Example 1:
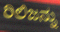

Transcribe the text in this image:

ರಿಲಿಜನ್ನು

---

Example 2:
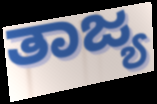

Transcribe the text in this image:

ತಾಜ್ಯ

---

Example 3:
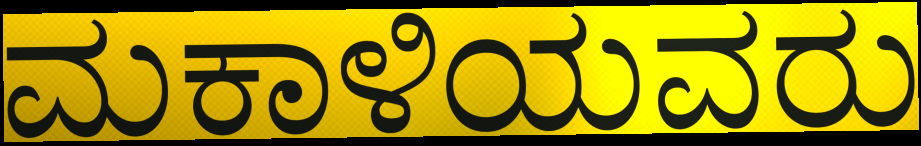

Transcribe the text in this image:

ಮಕಾಳಿಯವರು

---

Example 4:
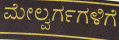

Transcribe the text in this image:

ಮೇಲ್ವರ್ಗಗಳಿಗೆ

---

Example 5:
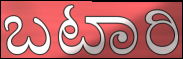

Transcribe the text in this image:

ಬಟಾರಿ